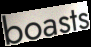
boasts